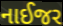
નાઈજર